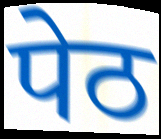
पेठ